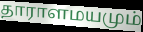
தாராளமயமும்